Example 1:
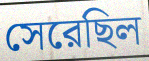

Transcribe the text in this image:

সেরেছিল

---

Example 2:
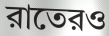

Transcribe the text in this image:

রাতেরও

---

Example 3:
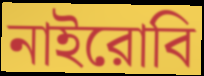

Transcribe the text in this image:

নাইরোবি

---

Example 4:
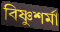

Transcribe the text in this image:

বিষ্ণুশর্মা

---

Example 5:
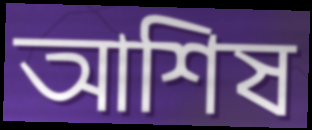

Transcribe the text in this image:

আশিষ